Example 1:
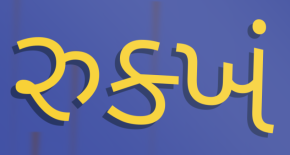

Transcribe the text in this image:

રુક્ખં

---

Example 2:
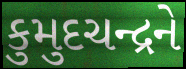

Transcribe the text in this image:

કુમુદચન્દ્રને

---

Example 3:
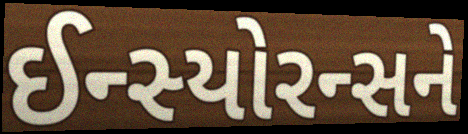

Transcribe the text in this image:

ઈન્સ્યોરન્સને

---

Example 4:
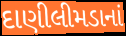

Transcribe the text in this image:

દાણીલીમડાનાં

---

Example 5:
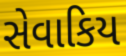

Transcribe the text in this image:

સેવાકિય